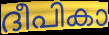
ദീപികാ